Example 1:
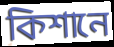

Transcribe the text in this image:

কিশানে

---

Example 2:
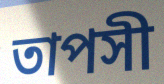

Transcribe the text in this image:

তাপসী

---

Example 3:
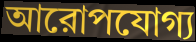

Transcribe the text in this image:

আরোপযোগ্য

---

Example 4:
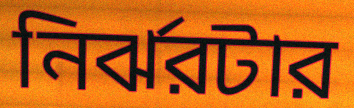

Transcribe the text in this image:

নির্ঝরটার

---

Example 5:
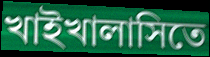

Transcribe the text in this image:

খাইখালাসিতে